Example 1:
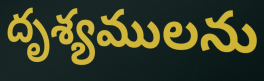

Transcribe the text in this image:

దృశ్యములను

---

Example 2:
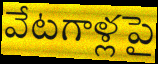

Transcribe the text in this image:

వేటగాళ్లపై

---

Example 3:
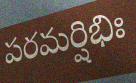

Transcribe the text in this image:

పరమర్షిభిః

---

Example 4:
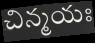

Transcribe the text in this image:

చిన్మయః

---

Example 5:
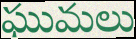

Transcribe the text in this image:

ఘుమలు